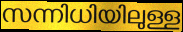
സന്നിധിയിലുള്ള